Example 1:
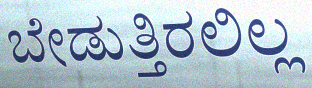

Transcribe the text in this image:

ಬೇಡುತ್ತಿರಲಿಲ್ಲ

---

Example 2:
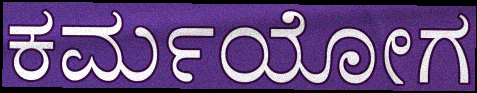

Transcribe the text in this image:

ಕರ್ಮಯೋಗ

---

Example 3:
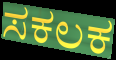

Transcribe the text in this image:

ಸಕಲಕ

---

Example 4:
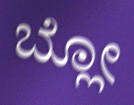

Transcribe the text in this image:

ಬ್ಲೋ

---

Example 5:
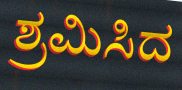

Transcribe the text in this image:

ಶ್ರಮಿಸಿದ